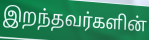
இறந்தவர்களின்